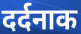
दर्दनाक